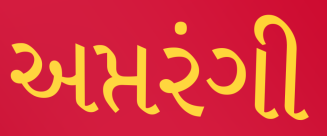
અપ્તરંગી